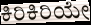
ಕಿರಿಕಿರಿಯೇ